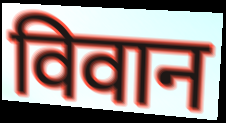
विवान